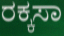
ರಕ್ಕಸಾ